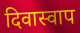
दिवास्वाप